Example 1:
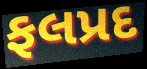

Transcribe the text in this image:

ફલપ્રદ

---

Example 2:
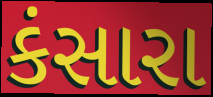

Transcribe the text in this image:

કંસારા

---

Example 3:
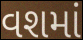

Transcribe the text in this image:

વશમાં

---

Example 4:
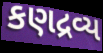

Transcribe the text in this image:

કણદ્રવ્ય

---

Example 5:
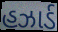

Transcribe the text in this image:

હઝાર્ડ